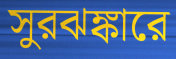
সুরঝঙ্কারে